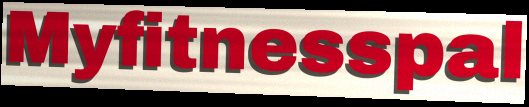
Myfitnesspal